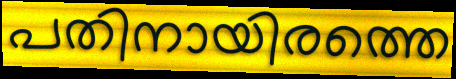
പതിനായിരത്തെ